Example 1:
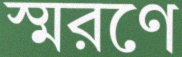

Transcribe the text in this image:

স্মরণে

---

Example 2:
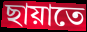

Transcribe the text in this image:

ছায়াতে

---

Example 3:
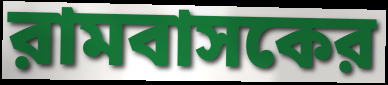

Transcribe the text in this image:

রামবাসকের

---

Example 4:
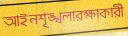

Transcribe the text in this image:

আইনশৃঙ্খলারক্ষাকারী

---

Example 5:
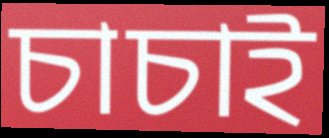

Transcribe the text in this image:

চাচাই